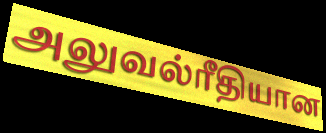
அலுவல்ரீதியான